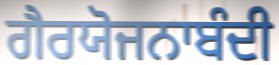
ਗੈਰਯੋਜਨਾਬੰਦੀ